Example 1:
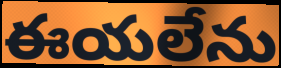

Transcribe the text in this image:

ఈయలేను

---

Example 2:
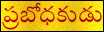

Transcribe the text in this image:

ప్రబోధకుడు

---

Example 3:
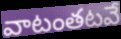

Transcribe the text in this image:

వాటంతటవే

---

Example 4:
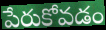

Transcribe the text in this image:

పేరుకోవడం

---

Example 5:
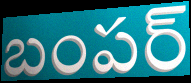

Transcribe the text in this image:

బంపర్